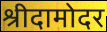
श्रीदामोदर